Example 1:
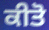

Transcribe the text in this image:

ਕੀਤੋ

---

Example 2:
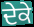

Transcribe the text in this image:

ਦੇਕੇ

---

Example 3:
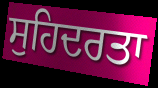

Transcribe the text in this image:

ਸੁਹਿਦਰਤਾ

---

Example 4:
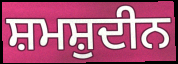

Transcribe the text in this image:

ਸ਼ਮਸ਼ੁਦੀਨ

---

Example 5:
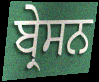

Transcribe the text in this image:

ਬ੍ਰੇਸਨ